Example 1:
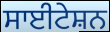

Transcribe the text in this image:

ਸਾਈਟੇਸ਼ਨ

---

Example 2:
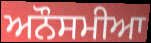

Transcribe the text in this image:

ਅਨੌਸਮੀਆ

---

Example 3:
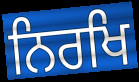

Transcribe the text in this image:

ਨਿਰਖਿ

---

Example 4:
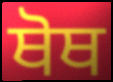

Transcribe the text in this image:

ਥੋਥ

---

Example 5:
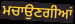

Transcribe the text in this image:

ਮਚਾਉਣਗੀਆਂ